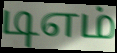
டிஎம்